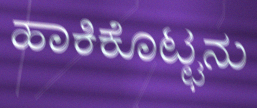
ಹಾಕಿಕೊಟ್ಟನು